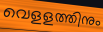
വെളളത്തിനും